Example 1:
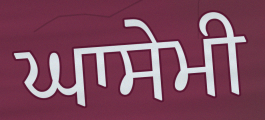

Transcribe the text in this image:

ਘਾਸੇਮੀ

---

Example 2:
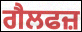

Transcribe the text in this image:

ਗੈਲਫਜ਼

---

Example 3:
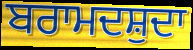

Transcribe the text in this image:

ਬਰਾਮਦਸ਼ੁਦਾ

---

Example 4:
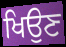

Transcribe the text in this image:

ਖਿਉਣ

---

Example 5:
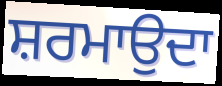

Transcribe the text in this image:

ਸ਼ਰਮਾਉਦਾ